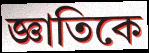
জ্ঞাতিকে